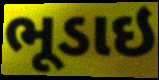
ભૂડાઇ